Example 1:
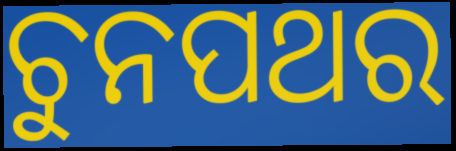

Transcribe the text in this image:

ଚୁନପଥର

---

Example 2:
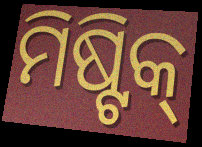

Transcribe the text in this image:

ମିଷ୍ଟିକ୍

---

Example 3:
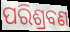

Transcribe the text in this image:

ପରିଶ୍ରବଣ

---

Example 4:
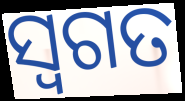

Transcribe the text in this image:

ସ୍ଵଗତ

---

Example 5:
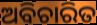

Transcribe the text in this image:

ଅବିଚାରିତ